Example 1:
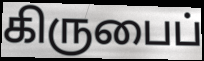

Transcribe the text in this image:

கிருபைப்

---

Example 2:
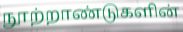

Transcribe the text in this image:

நூற்றாண்டுகளின்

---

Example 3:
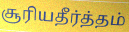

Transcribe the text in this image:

சூரியதீர்த்தம்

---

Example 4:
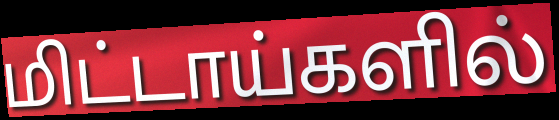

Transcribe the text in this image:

மிட்டாய்களில்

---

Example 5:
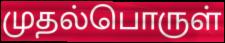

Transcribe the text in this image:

முதல்பொருள்